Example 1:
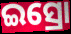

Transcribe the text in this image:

ଇସ୍ରୋ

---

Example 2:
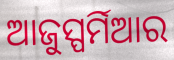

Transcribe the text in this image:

ଆଜୁସ୍ପର୍ମିଆର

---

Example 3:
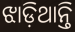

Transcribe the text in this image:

ଝାଡ଼ିଥାନ୍ତି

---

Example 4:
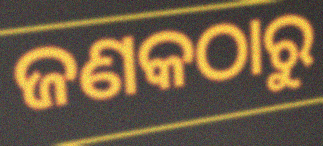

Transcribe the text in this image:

ଜଣକଠାରୁ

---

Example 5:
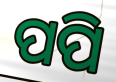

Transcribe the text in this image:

ପପି